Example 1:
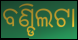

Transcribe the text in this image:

ବଣ୍ଡିଲଟା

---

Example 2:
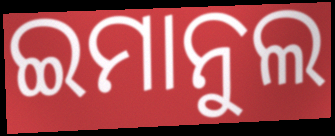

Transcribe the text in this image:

ଇମାନୁଲ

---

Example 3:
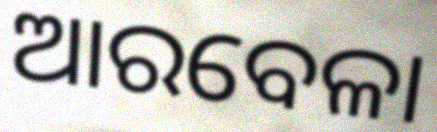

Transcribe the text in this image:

ଆରବେଳା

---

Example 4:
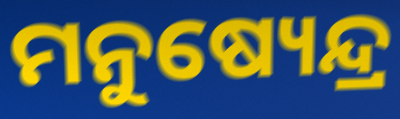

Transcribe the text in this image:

ମନୁଷ୍ୟେନ୍ଦ୍ର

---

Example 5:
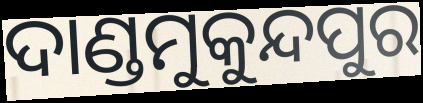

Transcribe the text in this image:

ଦାଣ୍ଡମୁକୁନ୍ଦପୁର